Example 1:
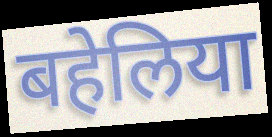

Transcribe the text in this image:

बहेलिया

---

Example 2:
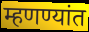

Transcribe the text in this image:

म्हणण्यांत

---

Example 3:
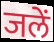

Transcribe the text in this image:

जलें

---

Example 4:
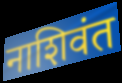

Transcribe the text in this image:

नाशिवंत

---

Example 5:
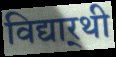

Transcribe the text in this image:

विद्यार्थी